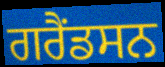
ਗਰੈਂਡਸਨ